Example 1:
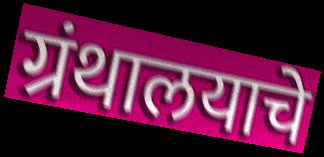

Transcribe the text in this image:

ग्रंथालयाचे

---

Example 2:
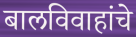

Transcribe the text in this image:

बालविवाहांचे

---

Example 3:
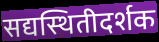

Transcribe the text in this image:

सद्यस्थितीदर्शक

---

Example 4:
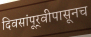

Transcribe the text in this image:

दिवसांपूर्वीपासूनच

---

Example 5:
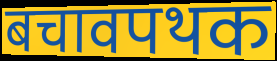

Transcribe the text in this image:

बचावपथक